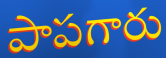
పాపగారు